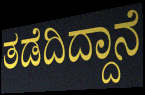
ತಡೆದಿದ್ದಾನೆ